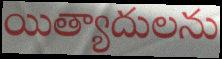
యిత్యాదులను